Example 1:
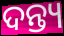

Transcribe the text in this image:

ଦନ୍ତ୍ୟ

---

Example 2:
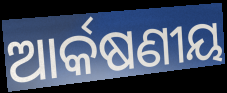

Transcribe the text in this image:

ଆର୍କଷଣୀୟ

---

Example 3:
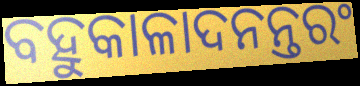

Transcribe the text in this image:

ବହୁକାଳାଦନନ୍ତରଂ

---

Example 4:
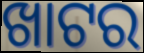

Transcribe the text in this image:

ଖାଟର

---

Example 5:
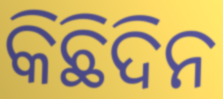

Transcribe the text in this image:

କିଛିଦିନ